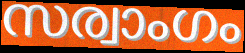
സര്വാംഗം